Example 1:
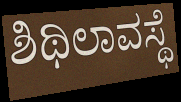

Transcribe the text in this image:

ಶಿಥಿಲಾವಸ್ಥೆ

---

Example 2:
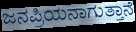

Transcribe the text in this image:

ಜನಪ್ರಿಯನಾಗುತ್ತಾನೆ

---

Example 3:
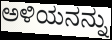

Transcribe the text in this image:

ಅಳಿಯನನ್ನು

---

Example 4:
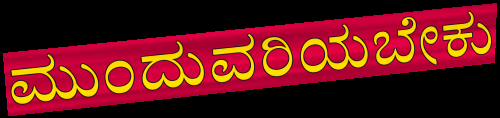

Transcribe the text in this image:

ಮುಂದುವರಿಯಬೇಕು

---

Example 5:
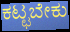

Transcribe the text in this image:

ಕಟ್ಟಬೇಕು